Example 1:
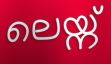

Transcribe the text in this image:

ലെയ്ന്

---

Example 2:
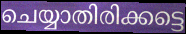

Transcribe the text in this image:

ചെയ്യാതിരിക്കട്ടെ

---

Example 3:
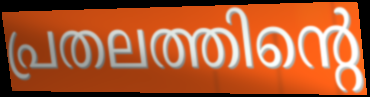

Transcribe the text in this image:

പ്രതലത്തിന്റെ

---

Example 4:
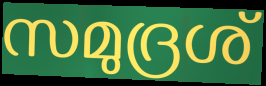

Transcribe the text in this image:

സമുദ്രശ്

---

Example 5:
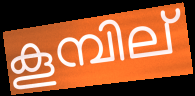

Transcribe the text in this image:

കൂമ്പില്